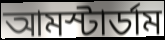
আমস্টার্ডাম